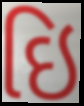
ઇિ